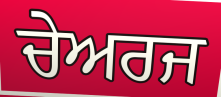
ਚੇਅਰਜ